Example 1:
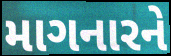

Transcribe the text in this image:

માગનારને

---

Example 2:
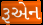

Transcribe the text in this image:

રૂએન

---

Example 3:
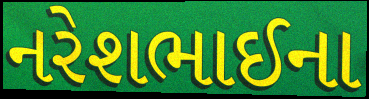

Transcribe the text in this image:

નરેશભાઈના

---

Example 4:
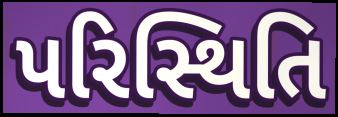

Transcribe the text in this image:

પરિસ્થિતિ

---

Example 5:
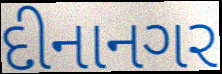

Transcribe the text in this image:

દીનાનગર